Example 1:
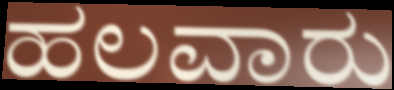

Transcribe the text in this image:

ಹಲವಾರು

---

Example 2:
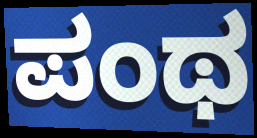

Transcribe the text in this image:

ಪಂಥ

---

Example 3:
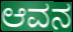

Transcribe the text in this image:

ಆವನ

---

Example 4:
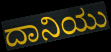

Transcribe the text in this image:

ದಾನಿಯು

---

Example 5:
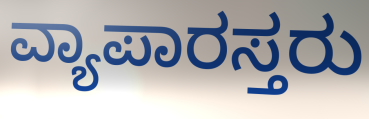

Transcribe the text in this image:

ವ್ಯಾಪಾರಸ್ತರು